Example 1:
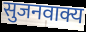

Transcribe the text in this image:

सुजनवाक्य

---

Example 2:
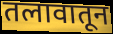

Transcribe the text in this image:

तलावातून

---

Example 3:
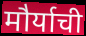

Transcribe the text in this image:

मौर्याची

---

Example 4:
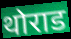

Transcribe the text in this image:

थोराड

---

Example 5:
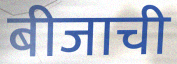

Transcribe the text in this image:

बीजाची